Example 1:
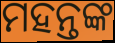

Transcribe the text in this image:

ମହନ୍ତଙ୍କ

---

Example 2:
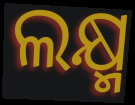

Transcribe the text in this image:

ଲକ୍ଷ୍ମ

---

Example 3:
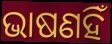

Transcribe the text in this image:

ଭାଷଣହିଁ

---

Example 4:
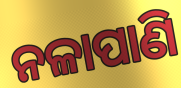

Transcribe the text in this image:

ନଳାପାଣି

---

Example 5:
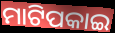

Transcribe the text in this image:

ମାଟିପକାଇ